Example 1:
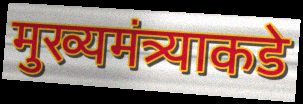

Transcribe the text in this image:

मुख्यमंत्र्याकडे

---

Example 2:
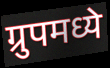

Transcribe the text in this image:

ग्रुपमध्ये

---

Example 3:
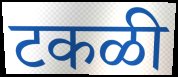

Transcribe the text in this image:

टकळी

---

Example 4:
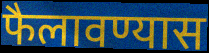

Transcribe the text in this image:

फैलावण्यास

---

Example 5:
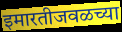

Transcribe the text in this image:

इमारतीजवळच्या